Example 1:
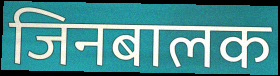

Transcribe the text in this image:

जिनबालक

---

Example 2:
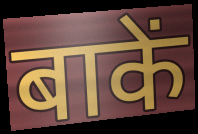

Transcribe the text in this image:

बाकें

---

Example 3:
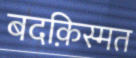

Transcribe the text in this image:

बदक़िस्मत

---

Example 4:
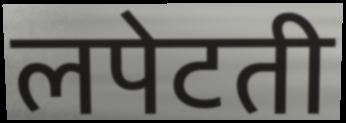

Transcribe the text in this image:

लपेटती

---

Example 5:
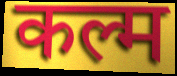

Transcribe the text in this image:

कल्म